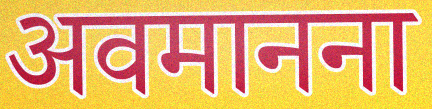
अवमानना